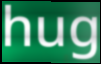
hug